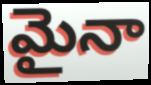
మైనా